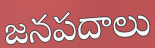
జనపదాలు